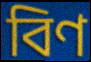
বিণ